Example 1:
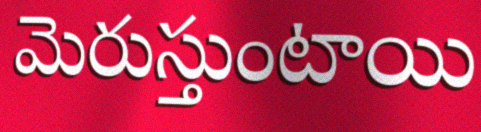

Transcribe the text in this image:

మెరుస్తుంటాయి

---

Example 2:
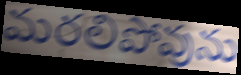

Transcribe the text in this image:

మరలిపోవును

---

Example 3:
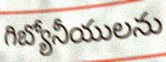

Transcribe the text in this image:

గిబ్యోనీయులను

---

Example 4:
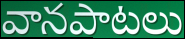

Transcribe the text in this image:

వానపాటలు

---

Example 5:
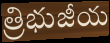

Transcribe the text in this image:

త్రిభుజీయ